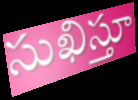
సుఖిస్తూ